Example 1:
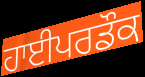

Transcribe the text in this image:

ਹਾਈਪਰਡੌਕ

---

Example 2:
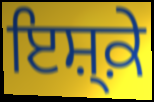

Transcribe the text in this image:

ਇਸ਼੍ਕ਼ੇ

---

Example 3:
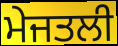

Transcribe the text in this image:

ਮੇਜਤਲੀ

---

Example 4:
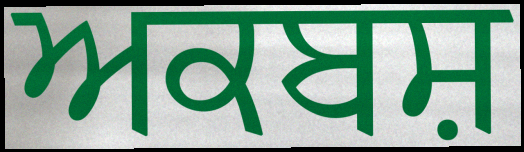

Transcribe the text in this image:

ਅਕਬਸ਼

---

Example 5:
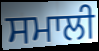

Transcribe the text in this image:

ਸਮਾਲੀ